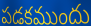
పడకముందు